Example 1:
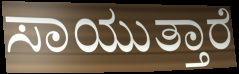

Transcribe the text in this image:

ಸಾಯುತ್ತಾರೆ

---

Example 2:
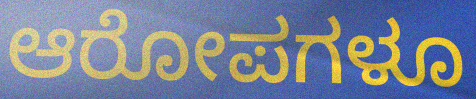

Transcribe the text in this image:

ಆರೋಪಗಳೂ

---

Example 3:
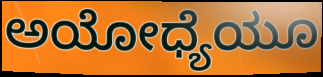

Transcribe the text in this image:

ಅಯೋಧ್ಯೆಯೂ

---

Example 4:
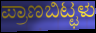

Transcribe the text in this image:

ಪ್ರಾಣಬಿಟ್ಟಳು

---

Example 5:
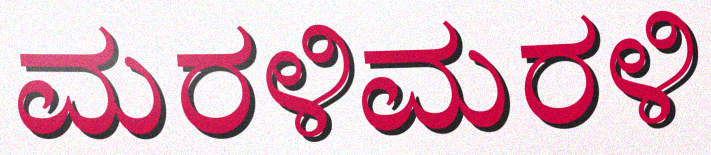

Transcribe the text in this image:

ಮರಳಿಮರಳಿ